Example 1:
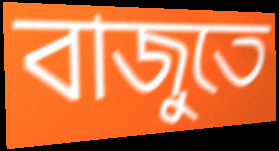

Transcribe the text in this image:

বাজুতে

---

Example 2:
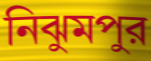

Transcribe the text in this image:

নিঝুমপুর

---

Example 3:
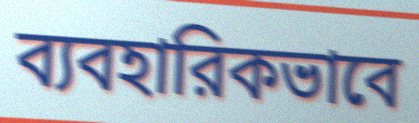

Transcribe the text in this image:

ব্যবহারিকভাবে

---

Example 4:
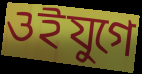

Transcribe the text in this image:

ওইযুগে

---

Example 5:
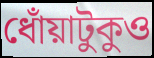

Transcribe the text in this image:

ধোঁয়াটুকুও